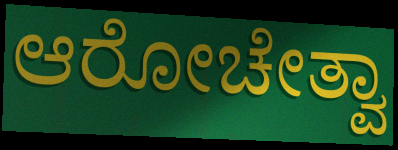
ಆರೋಚೇತ್ವಾ